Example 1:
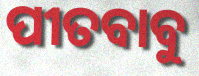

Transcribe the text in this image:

ପୀତବାବୁ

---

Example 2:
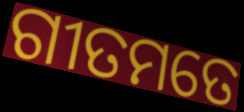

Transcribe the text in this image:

ଗୀତମତେ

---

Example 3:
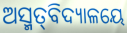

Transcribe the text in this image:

ଅସ୍ମତ୍‌ବିଦ୍ୟାଳୟେ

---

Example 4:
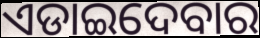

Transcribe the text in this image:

ଏଡାଇଦେବାର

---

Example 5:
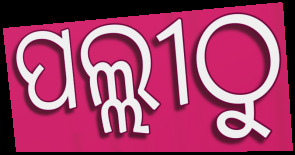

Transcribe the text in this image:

ପଲ୍ଲୀଠୁ